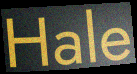
Hale